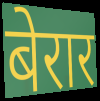
बेरार